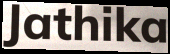
Jathika